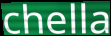
chella